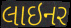
લાઇનર